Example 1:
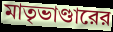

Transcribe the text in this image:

মাতৃভাণ্ডারের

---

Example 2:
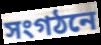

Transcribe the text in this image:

সংগঠনে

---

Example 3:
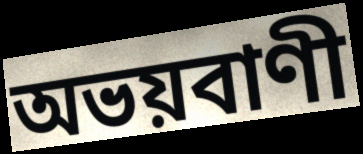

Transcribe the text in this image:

অভয়বাণী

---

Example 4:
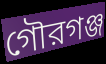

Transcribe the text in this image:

গৌরগঞ্জ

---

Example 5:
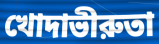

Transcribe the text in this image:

খোদাভীরুতা